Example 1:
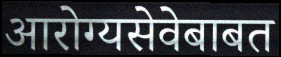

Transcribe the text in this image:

आरोग्यसेवेबाबत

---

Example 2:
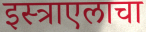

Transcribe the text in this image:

इस्त्राएलाचा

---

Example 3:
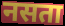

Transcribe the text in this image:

नसता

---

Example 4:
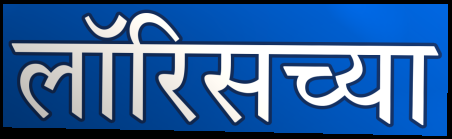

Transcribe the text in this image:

लॉरिसच्या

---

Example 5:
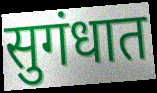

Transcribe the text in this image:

सुगंधात